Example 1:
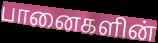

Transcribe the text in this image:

பானைகளின்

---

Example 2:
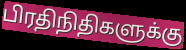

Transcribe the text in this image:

பிரதிநிதிகளுக்கு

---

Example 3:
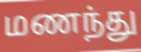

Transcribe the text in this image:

மணந்து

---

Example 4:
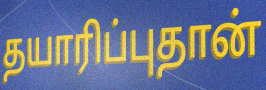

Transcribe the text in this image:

தயாரிப்புதான்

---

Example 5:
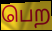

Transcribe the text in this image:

பெற